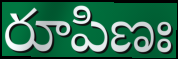
రూపిణః